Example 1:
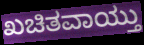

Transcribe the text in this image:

ಖಚಿತವಾಯ್ತು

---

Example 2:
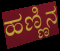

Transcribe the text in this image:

ಹಣ್ಣಿನ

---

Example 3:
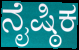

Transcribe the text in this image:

ನೈಷ್ಠಿಕ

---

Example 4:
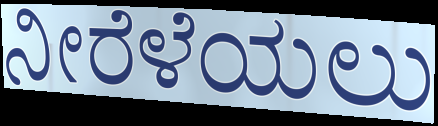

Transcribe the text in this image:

ನೀರೆಳೆಯಲು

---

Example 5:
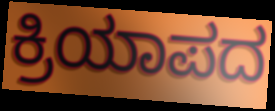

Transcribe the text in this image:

ಕ್ರಿಯಾಪದ